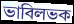
ভাবিলভক